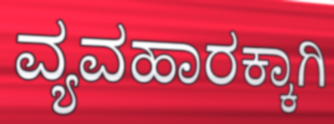
ವ್ಯವಹಾರಕ್ಕಾಗಿ